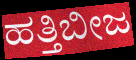
ಹತ್ತಿಬೀಜ